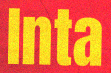
Inta